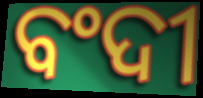
ବଂଦୀ